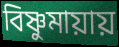
বিষ্ণুমায়ায়